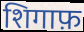
शिगाफ़